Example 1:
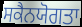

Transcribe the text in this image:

ਸਕੈਨਯੋਗਤਾ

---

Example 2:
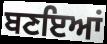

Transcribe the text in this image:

ਬਣਇਆਂ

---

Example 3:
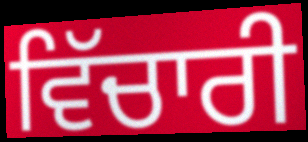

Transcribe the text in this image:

ਵਿੱਚਾਰੀ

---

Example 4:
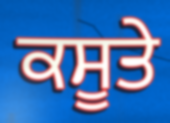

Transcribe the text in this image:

ਕਸੂਤੇ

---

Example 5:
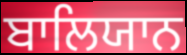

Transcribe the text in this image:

ਬਾਲਿਯਾਨ